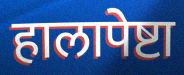
हालापेष्टा